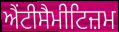
ਐਂਟੀਸੈਮੀਟਿਜ਼ਮ